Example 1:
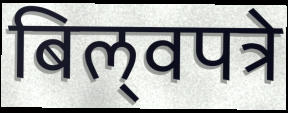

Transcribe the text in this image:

बिल्वपत्रे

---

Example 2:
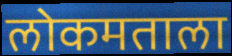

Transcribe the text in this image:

लोकमताला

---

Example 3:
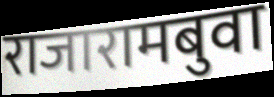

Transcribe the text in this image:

राजारामबुवा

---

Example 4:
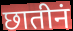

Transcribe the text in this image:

छातीनं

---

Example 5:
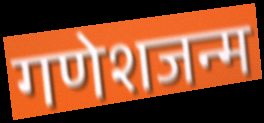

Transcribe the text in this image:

गणेशजन्म